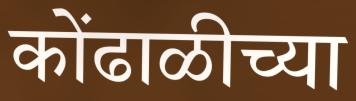
कोंढाळीच्या